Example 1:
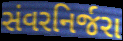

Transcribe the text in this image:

સંવરનિર્જરા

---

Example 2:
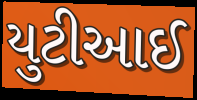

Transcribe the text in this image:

યુટીઆઈ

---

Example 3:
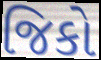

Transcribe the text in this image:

જિકો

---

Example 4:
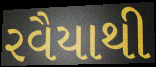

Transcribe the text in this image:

રવૈયાથી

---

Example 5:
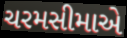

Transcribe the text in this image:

ચરમસીમાએ